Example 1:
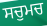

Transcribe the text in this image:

ਸਚੁਮਚ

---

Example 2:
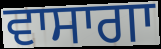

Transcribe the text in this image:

ਵਾਸਾਗਾ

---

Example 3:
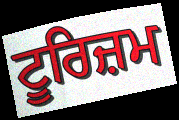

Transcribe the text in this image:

ਟੂਰਿਜ਼ਮ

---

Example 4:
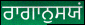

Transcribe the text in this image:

ਰਾਗਾਨੁਸਯਂ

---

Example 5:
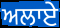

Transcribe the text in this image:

ਅਲਾਏ